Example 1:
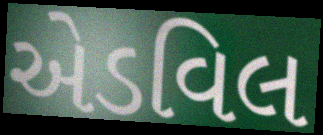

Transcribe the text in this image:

એડવિલ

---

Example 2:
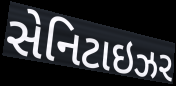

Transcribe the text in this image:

સેનિટાઇઝર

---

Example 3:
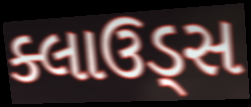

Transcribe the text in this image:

ક્લાઉડ્સ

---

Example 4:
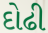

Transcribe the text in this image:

દોઢી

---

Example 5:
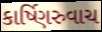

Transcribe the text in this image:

કાર્ષ્ણિરુવાચ